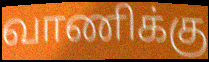
வாணிக்கு